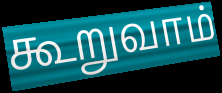
கூறுவாம்